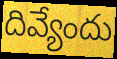
దివ్యేందు